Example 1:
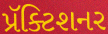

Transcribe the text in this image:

પ્રૅક્ટિશનર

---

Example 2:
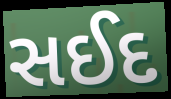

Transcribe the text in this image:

સઈદ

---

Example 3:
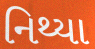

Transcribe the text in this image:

નિથ્યા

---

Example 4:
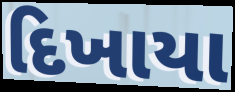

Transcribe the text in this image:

દિખાયા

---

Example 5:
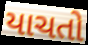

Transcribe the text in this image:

યાચતો